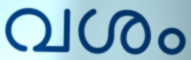
വശം